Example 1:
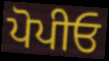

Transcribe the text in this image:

ਪੋਪੀਓ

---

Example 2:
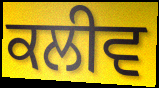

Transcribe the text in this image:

ਕਲੀਵ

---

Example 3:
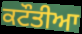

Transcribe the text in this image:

ਕਟੌਤੀਆ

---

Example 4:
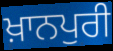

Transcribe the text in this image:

ਖ਼ਾਨਪੁਰੀ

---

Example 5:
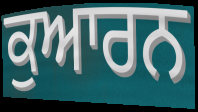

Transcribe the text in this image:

ਕੁਆਰਨ